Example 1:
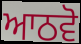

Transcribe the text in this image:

ਆਠਵੋ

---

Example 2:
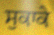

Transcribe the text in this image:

ਸੁਕਾਕੇ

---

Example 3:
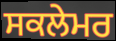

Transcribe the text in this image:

ਸਕਲੇਮਰ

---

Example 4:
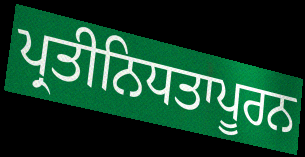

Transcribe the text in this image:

ਪ੍ਰਤੀਨਿਧਤਾਪੂਰਨ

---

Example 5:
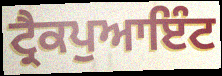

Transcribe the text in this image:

ਟ੍ਰੈਕਪੁਆਇੰਟ